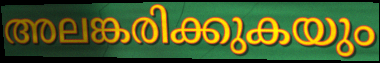
അലങ്കരിക്കുകയും